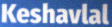
Keshavlal